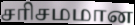
சரிசமமான